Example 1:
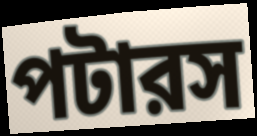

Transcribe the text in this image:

পটারস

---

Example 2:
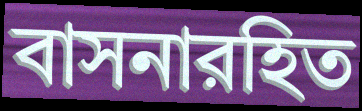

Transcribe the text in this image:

বাসনারহিত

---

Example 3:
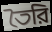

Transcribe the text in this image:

তৈরি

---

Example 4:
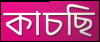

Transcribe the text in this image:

কাচছি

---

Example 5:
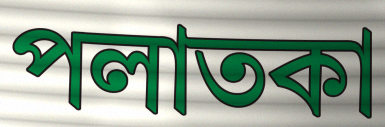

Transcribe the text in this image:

পলাতকা